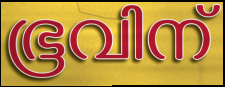
ഭൂവിന്